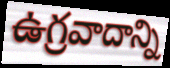
ఉగ్రవాదాన్ని